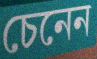
চেনেন